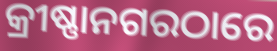
କ୍ରୀଷ୍ଣାନଗରଠାରେ